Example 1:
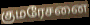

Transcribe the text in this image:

குமரேசனை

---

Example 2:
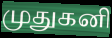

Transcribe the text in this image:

முதுகனி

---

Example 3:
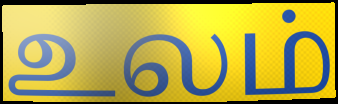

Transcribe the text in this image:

உலம்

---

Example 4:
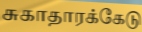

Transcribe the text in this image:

சுகாதாரக்கேடு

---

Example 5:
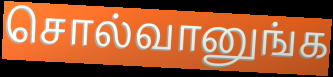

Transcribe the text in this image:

சொல்வானுங்க